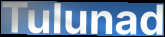
Tulunad